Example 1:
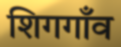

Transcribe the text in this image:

शिगगाँव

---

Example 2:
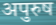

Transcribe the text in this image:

अपुरुष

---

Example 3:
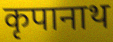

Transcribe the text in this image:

कृपानाथ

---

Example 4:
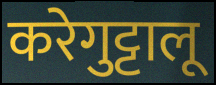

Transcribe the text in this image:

करेगुट्टालू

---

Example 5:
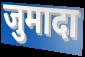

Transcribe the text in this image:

जुमादा